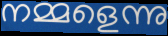
നമ്മളെന്നു